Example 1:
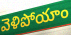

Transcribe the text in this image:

వెళిపోయాం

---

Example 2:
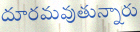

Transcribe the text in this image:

దూరమవుతున్నారు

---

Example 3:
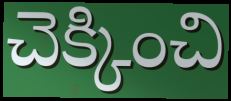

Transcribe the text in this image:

చెక్కించి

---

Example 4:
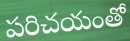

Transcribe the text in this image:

పరిచయంతో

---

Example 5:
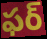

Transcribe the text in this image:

ఫర్